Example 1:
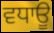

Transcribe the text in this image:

ਵਧਾਊ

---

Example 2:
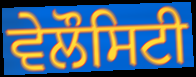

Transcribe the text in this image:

ਵੇਲੌਸਿਟੀ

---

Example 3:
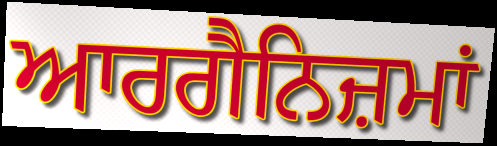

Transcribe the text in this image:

ਆਰਗੈਨਿਜ਼ਮਾਂ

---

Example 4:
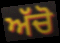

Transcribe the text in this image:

ਅੱਚੋ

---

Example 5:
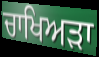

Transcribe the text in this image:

ਚਾਖਿਅੜਾ